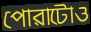
পোৱাটোও